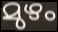
മുഴം